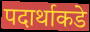
पदार्थाकडे